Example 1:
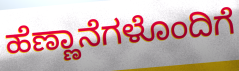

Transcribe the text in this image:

ಹೆಣ್ಣಾನೆಗಳೊಂದಿಗೆ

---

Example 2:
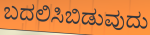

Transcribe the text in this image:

ಬದಲಿಸಿಬಿಡುವುದು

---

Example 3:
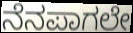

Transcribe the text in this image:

ನೆನಪಾಗಲೇ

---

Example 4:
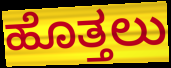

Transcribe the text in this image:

ಹೊತ್ತಲು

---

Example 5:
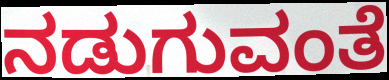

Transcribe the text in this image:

ನಡುಗುವಂತೆ